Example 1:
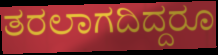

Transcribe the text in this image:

ತರಲಾಗದಿದ್ದರೂ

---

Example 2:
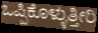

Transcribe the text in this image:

ಒಪ್ಪಿಕೊಳ್ಳುತ್ತೀರಿ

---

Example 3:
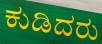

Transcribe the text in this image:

ಕುಡಿದರು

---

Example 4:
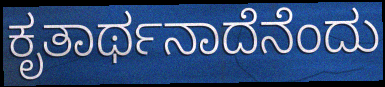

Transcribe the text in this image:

ಕೃತಾರ್ಥನಾದೆನೆಂದು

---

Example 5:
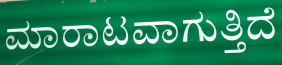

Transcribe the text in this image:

ಮಾರಾಟವಾಗುತ್ತಿದೆ